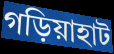
গড়িয়াহাট